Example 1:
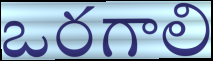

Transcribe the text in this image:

ఒరగాలి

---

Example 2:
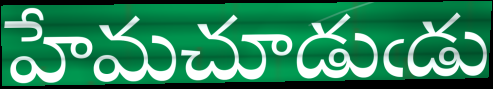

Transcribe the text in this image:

హేమచూడుఁడు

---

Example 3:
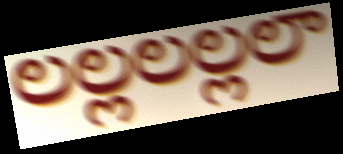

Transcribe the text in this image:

లల్లలల్లలా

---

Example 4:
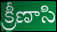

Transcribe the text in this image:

క్రీణాసి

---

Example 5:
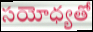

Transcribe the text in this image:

సయోధ్యతో